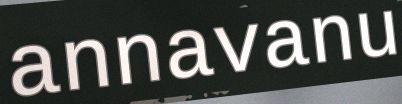
annavanu